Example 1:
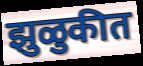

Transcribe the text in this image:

झुळुकीत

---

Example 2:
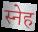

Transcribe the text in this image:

स्नेह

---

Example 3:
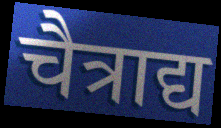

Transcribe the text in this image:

चैत्राद्य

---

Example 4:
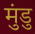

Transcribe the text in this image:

मुंडु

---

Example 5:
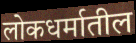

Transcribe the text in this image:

लोकधर्मातील